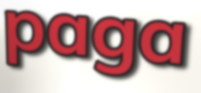
paga